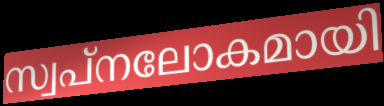
സ്വപ്നലോകമായി